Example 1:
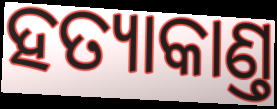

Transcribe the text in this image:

ହତ୍ୟାକାଣ୍ତ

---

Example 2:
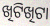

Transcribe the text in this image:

ଖିଟିଖିଟା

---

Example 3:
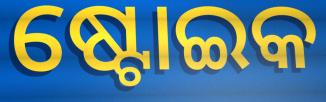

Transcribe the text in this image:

ଷ୍ଟୋଇକ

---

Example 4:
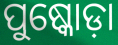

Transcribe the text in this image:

ପୁଷ୍କୋଡ଼ା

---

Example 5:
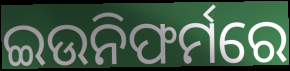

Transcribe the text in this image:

ଇଉନିଫର୍ମରେ